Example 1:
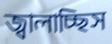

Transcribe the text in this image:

জ্বালাচ্ছিস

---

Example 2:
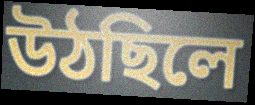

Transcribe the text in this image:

উঠছিলে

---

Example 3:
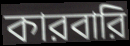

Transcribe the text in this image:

কারবারি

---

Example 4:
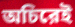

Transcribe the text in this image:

অচিরেই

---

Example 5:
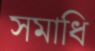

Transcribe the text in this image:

সমাধি